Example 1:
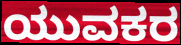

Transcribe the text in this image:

ಯುವಕರ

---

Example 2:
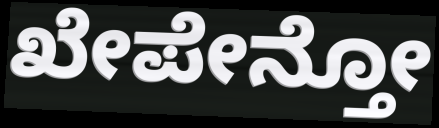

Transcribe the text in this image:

ಖೇಪೇನ್ತೋ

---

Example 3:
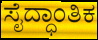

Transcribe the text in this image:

ಸೈದ್ಧಾಂತಿಕ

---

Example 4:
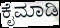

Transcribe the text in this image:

ಕೈಮಾಡಿ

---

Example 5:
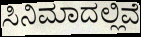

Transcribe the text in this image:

ಸಿನಿಮಾದಲ್ಲಿವೆ